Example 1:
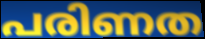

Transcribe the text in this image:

പരിണത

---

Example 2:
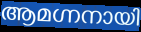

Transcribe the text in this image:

ആമഗ്നനായി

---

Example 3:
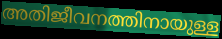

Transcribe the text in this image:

അതിജീവനത്തിനായുള്ള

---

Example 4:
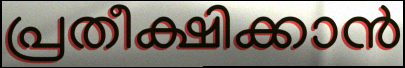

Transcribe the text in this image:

പ്രതീക്ഷിക്കാൻ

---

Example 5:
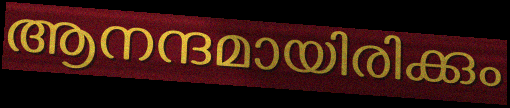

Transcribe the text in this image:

ആനന്ദമായിരിക്കും